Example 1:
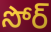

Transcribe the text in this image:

సోర్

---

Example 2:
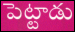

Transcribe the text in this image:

పెట్టాడు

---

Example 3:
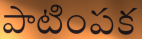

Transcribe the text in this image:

పాటింపక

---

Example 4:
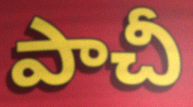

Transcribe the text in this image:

పాచీ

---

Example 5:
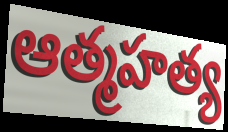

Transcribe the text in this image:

ఆత్మహత్య